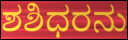
ಶಶಿಧರನು